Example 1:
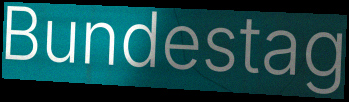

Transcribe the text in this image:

Bundestag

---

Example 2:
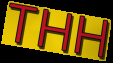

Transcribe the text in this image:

THH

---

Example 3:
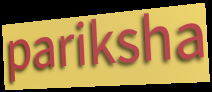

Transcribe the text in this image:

pariksha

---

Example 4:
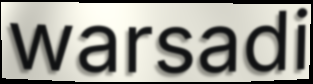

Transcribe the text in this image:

warsadi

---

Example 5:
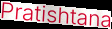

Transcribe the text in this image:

Pratishtana